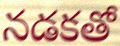
నడకతో